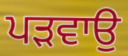
ਪੜਵਾਉ